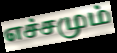
எச்சமும்